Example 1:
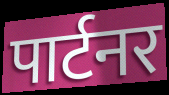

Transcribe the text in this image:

पार्टनर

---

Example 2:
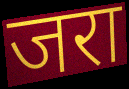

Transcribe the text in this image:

जरा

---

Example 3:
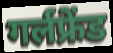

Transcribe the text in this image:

गर्लफ्रेंड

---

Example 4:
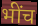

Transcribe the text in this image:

भींच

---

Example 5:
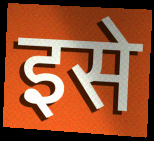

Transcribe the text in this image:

इसे